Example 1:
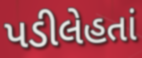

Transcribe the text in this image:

પડીલેહતાં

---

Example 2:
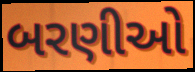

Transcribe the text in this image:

બરણીઓ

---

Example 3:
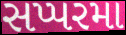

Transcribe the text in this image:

સપ્પરમા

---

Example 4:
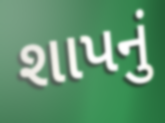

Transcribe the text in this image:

શાપનું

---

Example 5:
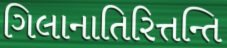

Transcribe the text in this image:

ગિલાનાતિરિત્તન્તિ